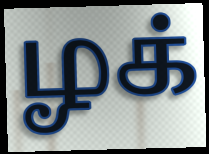
ழக்